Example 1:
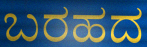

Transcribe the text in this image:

ಬರಹದ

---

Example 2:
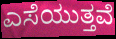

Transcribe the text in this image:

ಎಸೆಯುತ್ತವೆ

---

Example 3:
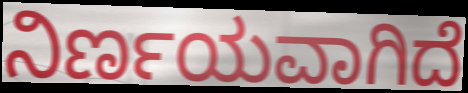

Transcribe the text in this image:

ನಿರ್ಣಯವಾಗಿದೆ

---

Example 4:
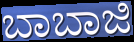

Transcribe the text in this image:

ಬಾಬಾಜಿ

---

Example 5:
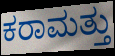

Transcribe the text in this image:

ಕರಾಮತ್ತು